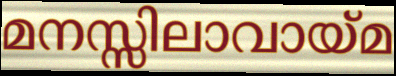
മനസ്സിലാവായ്മ